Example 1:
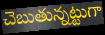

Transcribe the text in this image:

చెబుతున్నట్టుగా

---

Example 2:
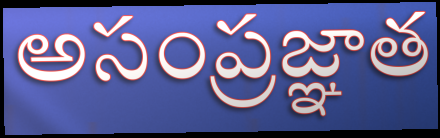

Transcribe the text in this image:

అసంప్రజ్ఞాత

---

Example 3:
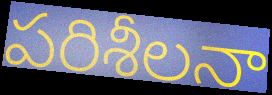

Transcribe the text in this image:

పరిశీలనా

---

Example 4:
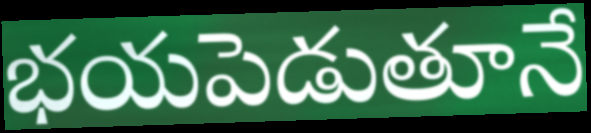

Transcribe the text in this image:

భయపెడుతూనే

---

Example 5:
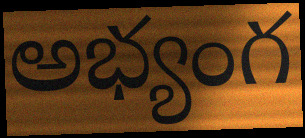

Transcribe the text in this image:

అభ్యంగ